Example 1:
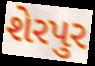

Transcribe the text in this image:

શેરપુર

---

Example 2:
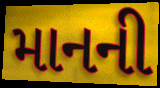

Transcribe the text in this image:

માનની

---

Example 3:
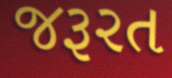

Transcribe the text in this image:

જરૂરત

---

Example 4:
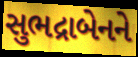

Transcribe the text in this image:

સુભદ્રાબેનને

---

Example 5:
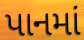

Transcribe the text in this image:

પાનમાં